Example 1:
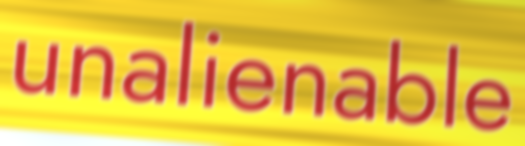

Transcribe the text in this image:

unalienable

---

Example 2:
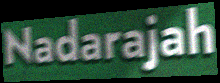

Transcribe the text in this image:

Nadarajah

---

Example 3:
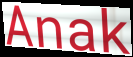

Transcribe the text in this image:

Anak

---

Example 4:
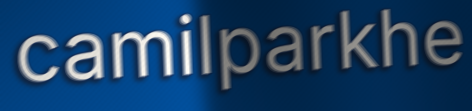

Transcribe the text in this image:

camilparkhe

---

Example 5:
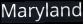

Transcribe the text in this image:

Maryland